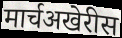
मार्चअखेरीस